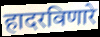
हादरविणारे